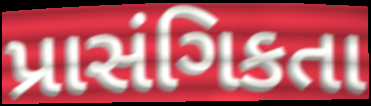
પ્રાસંગિકતા